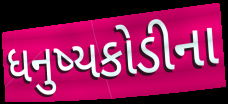
ધનુષ્યકોડીના